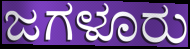
ಜಗಳೂರು